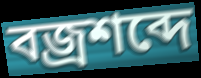
বজ্রশব্দে